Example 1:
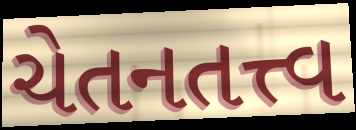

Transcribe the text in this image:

ચેતનતત્ત્વ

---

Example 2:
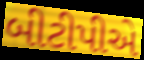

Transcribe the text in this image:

બીટીપીએ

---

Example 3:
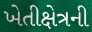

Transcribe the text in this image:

ખેતીક્ષેત્રની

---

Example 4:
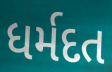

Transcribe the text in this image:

ધર્મદત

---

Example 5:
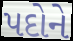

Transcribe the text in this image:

પદોને